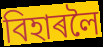
বিহাৰলৈ